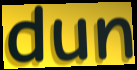
dun